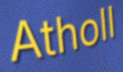
Atholl